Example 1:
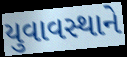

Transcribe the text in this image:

યુવાવસ્થાને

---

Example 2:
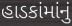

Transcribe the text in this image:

હાડકાંમાંનું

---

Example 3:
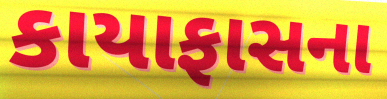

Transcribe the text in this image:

કાયાફાસના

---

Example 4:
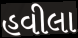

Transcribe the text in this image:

હવીલા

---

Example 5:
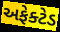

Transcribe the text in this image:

અફેક્ટેડ